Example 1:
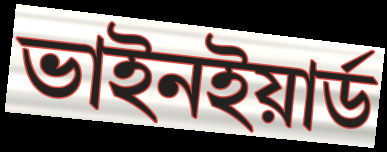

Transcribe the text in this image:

ভাইনইয়ার্ড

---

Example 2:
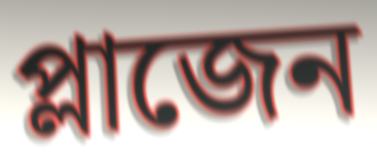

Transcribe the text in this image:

প্লাজেন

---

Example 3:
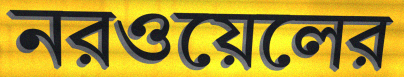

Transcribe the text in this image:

নরওয়েলের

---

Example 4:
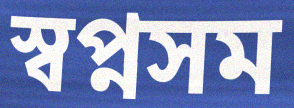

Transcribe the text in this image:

স্বপ্নসম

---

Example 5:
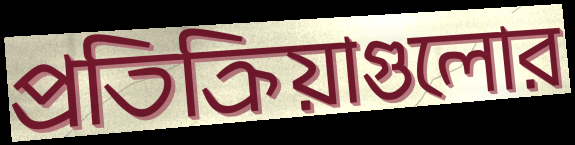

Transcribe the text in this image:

প্রতিক্রিয়াগুলোর